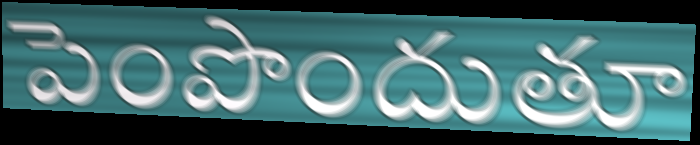
పెంపొందుతూ